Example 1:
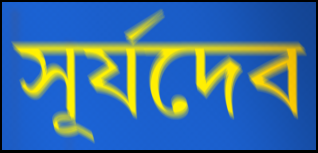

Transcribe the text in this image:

সূর্যদেব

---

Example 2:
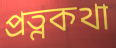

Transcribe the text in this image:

প্রত্নকথা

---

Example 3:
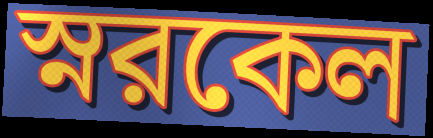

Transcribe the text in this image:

স্নরকেল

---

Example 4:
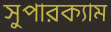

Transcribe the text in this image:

সুপারক্যাম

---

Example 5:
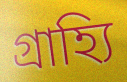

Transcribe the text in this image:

গ্রাহ্যি